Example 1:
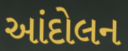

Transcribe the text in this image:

આંદોલન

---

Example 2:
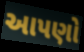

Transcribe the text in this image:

આપણો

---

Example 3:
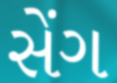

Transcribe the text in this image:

સેંગ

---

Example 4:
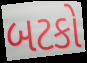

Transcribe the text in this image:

બટકો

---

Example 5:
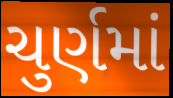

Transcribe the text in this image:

ચુર્ણમાં